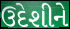
ઉદેશીને